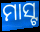
ମାସ୍ଟ